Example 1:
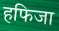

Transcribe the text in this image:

हफिजा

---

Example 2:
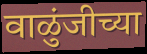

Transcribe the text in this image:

वाळुंजीच्या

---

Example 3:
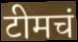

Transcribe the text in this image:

टीमचं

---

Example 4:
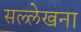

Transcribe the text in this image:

सल्लेखना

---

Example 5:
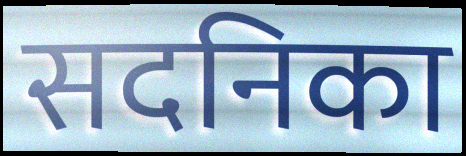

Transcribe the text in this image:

सदनिका